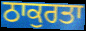
ਠਾਕੁਰਤਾ